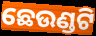
ଛେଉଣ୍ଡଟି